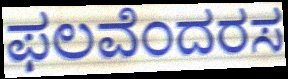
ಫಲವೆಂದರಸ